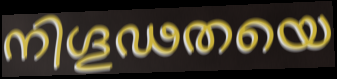
നിഗൂഢതയെ